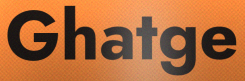
Ghatge